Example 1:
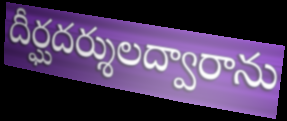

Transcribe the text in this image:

దీర్ఘదర్శులద్వారాను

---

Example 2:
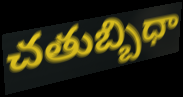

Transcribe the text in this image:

చతుబ్బిధా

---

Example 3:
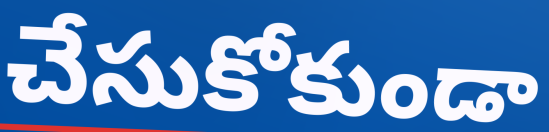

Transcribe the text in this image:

చేసుకోకుండా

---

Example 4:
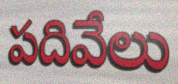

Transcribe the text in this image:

పదివేలు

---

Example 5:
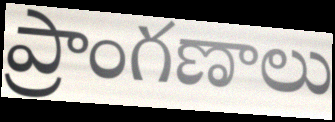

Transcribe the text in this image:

ప్రాంగణాలు